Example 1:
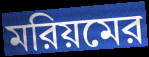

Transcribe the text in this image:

মরিয়মের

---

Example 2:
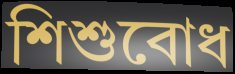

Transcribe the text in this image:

শিশুবোধ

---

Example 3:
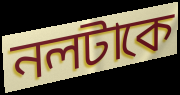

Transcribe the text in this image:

নলটাকে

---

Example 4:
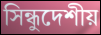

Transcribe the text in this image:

সিন্ধুদেশীয়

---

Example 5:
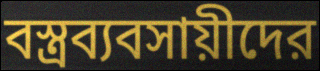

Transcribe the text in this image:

বস্ত্রব্যবসায়ীদের